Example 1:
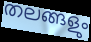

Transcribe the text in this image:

തലങ്ങളും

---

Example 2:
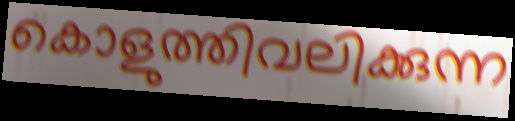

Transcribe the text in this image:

കൊളുത്തിവലിക്കുന്ന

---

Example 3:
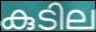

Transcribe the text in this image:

കുടില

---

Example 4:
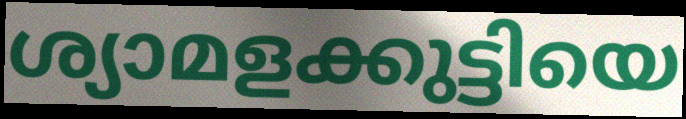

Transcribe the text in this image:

ശ്യാമളക്കുട്ടിയെ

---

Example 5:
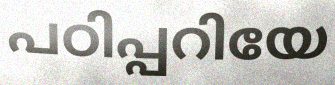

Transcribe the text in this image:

പഠിപ്പറിയേ